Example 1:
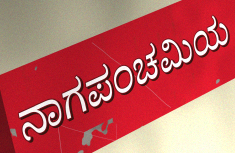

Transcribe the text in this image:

ನಾಗಪಂಚಮಿಯ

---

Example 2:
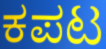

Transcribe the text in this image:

ಕಪಟ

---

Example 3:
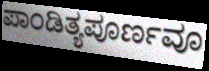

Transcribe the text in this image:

ಪಾಂಡಿತ್ಯಪೂರ್ಣವೂ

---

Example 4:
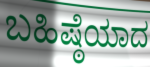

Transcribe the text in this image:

ಬಹಿಷ್ಠೆಯಾದ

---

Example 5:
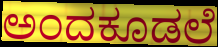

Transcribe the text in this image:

ಅಂದಕೂಡಲೆ